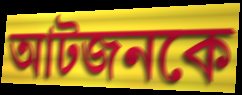
আটজনকে